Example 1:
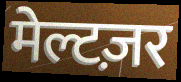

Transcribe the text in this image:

मेल्टज़र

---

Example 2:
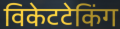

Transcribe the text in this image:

विकेटटेकिंग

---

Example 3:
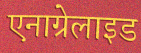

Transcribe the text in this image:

एनाग्रेलाइड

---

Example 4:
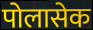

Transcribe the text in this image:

पोलासेक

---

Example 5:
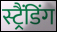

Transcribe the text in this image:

स्ट्रैंडिंग